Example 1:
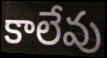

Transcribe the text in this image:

కాలేవు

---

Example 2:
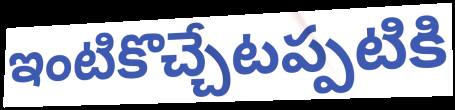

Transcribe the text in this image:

ఇంటికొచ్చేటప్పటికి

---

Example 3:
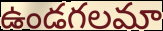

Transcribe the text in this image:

ఉండగలమా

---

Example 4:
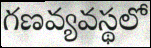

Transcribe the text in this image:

గణవ్యవస్థలో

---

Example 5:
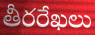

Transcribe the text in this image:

తీరరేఖలు